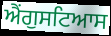
ਐਂਗੁਸਟਿਆਸ